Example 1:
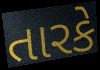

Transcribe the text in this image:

તારકે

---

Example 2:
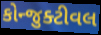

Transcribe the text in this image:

કોન્જુક્ટીવલ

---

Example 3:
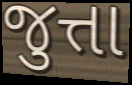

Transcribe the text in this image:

જુત્તા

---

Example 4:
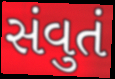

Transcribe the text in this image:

સંવુતં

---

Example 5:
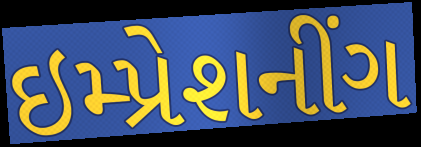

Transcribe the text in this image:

ઇમ્પ્રેશનીંગ